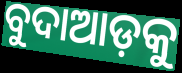
ବୁଦାଆଡ଼କୁ